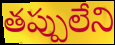
తప్పులేని